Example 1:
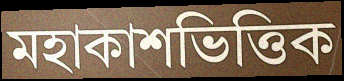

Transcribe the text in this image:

মহাকাশভিত্তিক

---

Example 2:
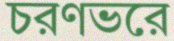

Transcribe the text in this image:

চরণভরে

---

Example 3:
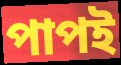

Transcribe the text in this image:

পাপই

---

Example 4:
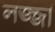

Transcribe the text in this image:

লজ্জা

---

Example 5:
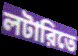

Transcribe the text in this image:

লটারিতে